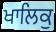
ਖਾਲਿਕੁ